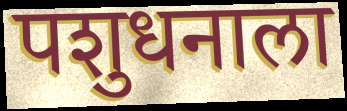
पशुधनाला